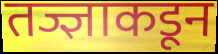
तज्ज्ञाकडून